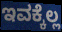
ಇವಕ್ಕೆಲ್ಲ